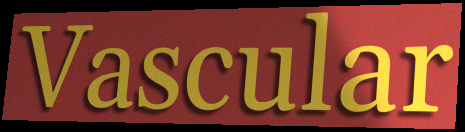
Vascular